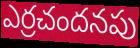
ఎర్రచందనపు